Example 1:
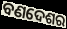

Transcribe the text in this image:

ବଣଦେଶର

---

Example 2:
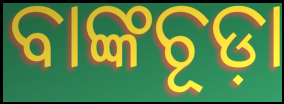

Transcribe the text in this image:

ବାଙ୍କଚୂଡ଼ା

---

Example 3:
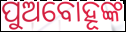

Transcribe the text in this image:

ପୁଅବୋହୂଙ୍କ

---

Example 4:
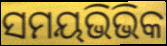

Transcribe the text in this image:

ସମୟଭିଭିକ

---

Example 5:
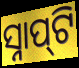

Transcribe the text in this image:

ସ୍ନାପ୍‍ଟି